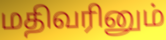
மதிவரினும்